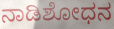
ನಾಡಿಶೋಧನ